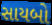
સાયબો